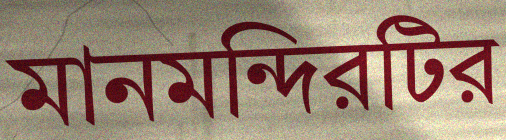
মানমন্দিরটির